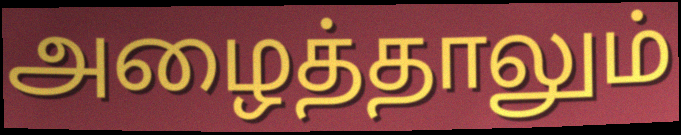
அழைத்தாலும்